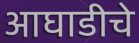
आघाडीचे